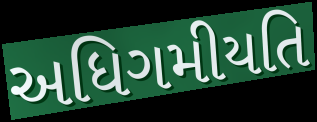
અધિગમીયતિ